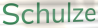
Schulze